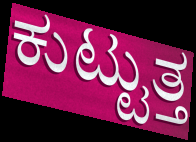
ಕುಟ್ಟುತ್ತ